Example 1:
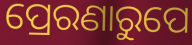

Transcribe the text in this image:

ପ୍ରେରଣାରୁପେ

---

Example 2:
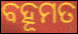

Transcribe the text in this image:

ବହୂମତ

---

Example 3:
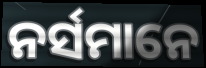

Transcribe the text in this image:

ନର୍ସମାନେ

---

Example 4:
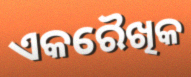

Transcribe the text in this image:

ଏକରୈଖିକ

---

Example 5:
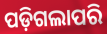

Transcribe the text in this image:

ପଡ଼ିଗଲାପରି